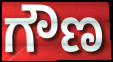
ಗೌಣ